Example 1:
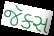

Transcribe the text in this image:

જૅક્સ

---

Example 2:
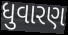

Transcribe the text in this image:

ધુવારણ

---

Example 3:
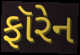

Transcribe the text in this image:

ફૉરેન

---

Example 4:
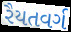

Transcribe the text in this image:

રૈયતવર્ગ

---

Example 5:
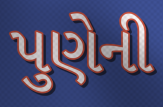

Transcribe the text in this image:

પુણેની